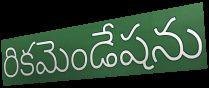
రికమెండేషను